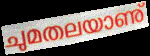
ചുമതലയാണു്